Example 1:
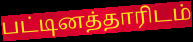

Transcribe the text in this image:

பட்டினத்தாரிடம்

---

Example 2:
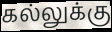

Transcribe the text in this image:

கல்லுக்கு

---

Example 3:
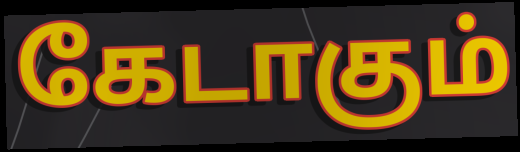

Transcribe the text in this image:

கேடாகும்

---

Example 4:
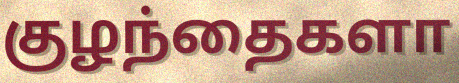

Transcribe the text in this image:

குழந்தைகளா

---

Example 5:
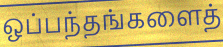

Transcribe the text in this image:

ஒப்பந்தங்களைத்